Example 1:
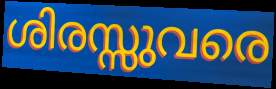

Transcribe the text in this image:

ശിരസ്സുവരെ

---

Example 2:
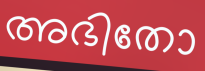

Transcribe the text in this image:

അഭിതോ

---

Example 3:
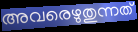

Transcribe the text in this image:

അവരെഴുതുന്നത്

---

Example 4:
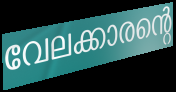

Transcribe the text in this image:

വേലക്കാരന്റെ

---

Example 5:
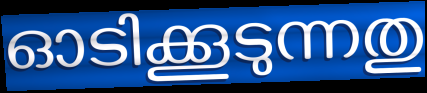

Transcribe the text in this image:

ഓടിക്കൂടുന്നതു